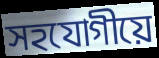
সহযোগীয়ে